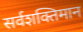
सर्वशक्तिमान